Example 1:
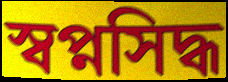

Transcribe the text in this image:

স্বপ্নসিদ্ধ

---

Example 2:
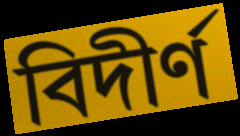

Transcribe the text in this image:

বিদীর্ণ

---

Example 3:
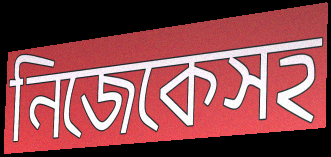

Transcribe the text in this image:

নিজেকেসহ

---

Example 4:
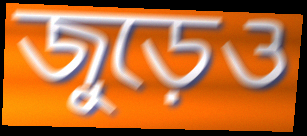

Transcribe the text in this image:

জুড়েও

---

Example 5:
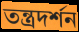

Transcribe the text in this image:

তন্ত্রদর্শন